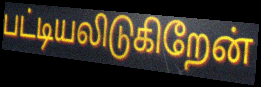
பட்டியலிடுகிறேன்